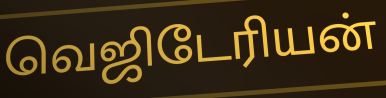
வெஜிடேரியன்